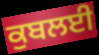
ਕੁਬਲਈ